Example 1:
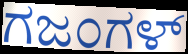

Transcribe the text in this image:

ಗಜಂಗಳ್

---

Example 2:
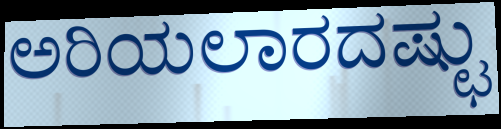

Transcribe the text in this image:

ಅರಿಯಲಾರದಷ್ಟು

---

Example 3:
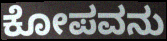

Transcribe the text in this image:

ಕೋಪವನು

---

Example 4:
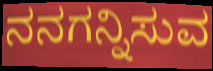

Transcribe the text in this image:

ನನಗನ್ನಿಸುವ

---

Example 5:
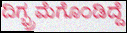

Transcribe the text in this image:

ದಿಗ್ಭ್ರಮೆಗೊಂಡಿದ್ದೆ